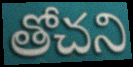
తోచని